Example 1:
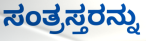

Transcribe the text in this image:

ಸಂತ್ರಸ್ತರನ್ನು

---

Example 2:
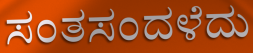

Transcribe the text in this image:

ಸಂತಸಂದಳೆದು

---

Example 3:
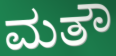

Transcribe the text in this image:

ಮತೌ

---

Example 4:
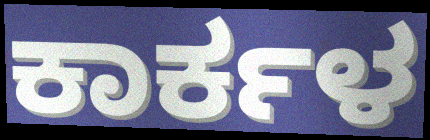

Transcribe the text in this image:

ಕಾರ್ಕಳ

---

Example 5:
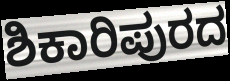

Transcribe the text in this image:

ಶಿಕಾರಿಪುರದ